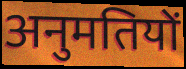
अनुमतियों